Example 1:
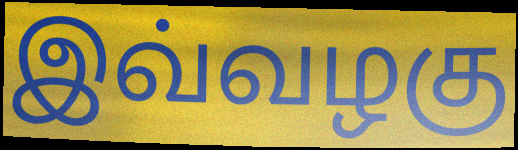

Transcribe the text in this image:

இவ்வழகு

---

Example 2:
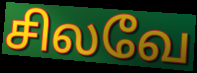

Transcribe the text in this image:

சிலவே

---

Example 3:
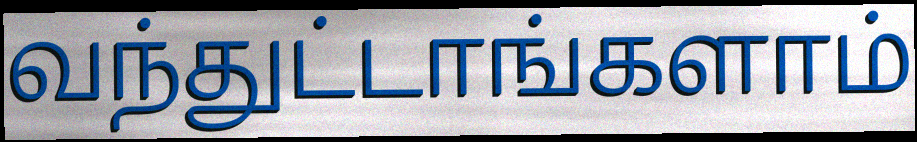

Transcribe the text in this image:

வந்துட்டாங்களாம்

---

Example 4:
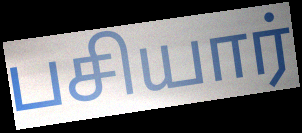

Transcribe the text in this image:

பசியார்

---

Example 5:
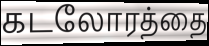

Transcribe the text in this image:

கடலோரத்தை